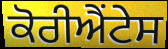
ਕੋਰੀਐਂਟੇਸ